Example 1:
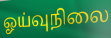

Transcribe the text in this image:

ஓய்வுநிலை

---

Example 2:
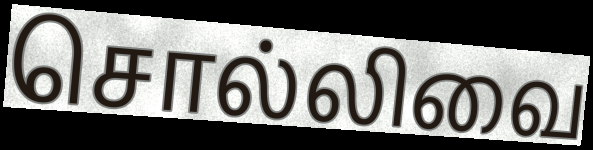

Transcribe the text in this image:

சொல்லிவை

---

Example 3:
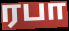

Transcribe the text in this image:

ரபா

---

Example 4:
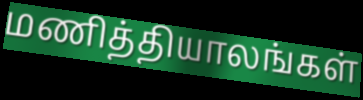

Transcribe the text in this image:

மணித்தியாலங்கள்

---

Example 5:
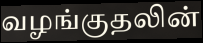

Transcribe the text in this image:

வழங்குதலின்